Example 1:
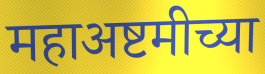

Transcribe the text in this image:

महाअष्टमीच्या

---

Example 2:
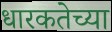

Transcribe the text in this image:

धारकतेच्या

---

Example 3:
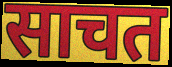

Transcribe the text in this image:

साचत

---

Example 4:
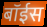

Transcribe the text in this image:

बॉईस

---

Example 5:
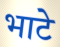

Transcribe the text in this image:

भाटे